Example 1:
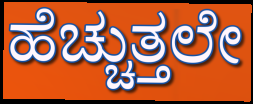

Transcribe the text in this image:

ಹೆಚ್ಚುತ್ತಲೇ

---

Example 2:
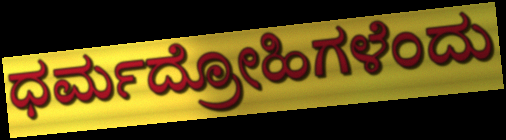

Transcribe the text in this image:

ಧರ್ಮದ್ರೋಹಿಗಳೆಂದು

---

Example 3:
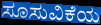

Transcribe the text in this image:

ಸೂಸುವಿಕೆಯ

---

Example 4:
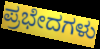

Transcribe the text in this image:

ಪ್ರಭೇದಗಳು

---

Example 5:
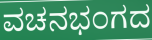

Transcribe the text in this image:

ವಚನಭಂಗದ